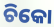
ଚିକୋ